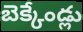
బెక్కేండ్లు